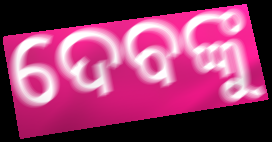
ଦେବଙ୍କୁ